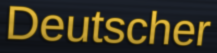
Deutscher